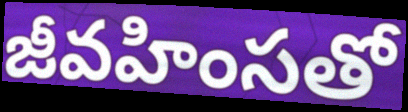
జీవహింసతో